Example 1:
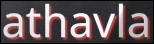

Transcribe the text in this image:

athavla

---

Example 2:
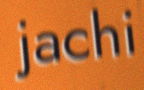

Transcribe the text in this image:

jachi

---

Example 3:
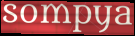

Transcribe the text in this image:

sompya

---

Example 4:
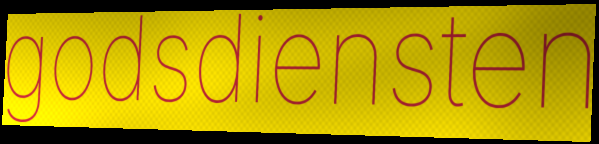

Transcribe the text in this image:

godsdiensten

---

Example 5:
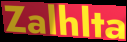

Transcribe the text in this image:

Zalhlta